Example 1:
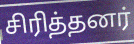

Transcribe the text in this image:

சிரித்தனர்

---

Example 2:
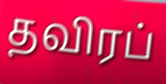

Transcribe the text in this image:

தவிரப்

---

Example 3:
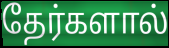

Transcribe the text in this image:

தேர்களால்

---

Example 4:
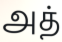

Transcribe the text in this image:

அத்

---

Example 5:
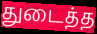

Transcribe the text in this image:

துடைத்த